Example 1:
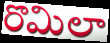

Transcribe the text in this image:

రొమిలా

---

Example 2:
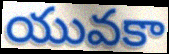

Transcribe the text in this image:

యువకా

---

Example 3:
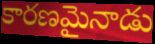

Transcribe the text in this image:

కారణమైనాడు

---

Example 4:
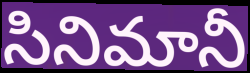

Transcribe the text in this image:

సినిమానీ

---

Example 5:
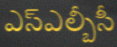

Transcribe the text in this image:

ఎస్ఎల్బీసీ